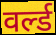
वर्ल्ड